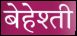
बेहेश्ती